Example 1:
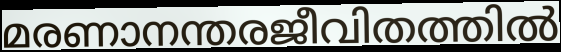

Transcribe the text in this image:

മരണാനന്തരജീവിതത്തിൽ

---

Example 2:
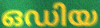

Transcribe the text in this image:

ഒഡിയ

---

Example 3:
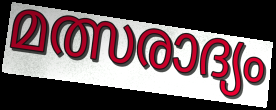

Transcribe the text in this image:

മത്സരാദ്യം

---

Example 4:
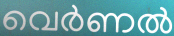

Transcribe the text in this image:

വെർണൽ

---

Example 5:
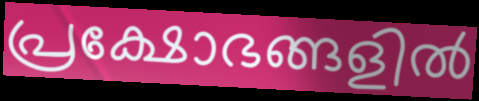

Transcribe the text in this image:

പ്രക്ഷോഭങ്ങളിൽ